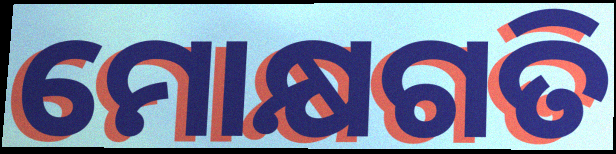
ମୋକ୍ଷଗତି